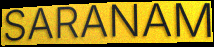
SARANAM